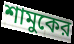
শামুকের